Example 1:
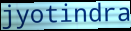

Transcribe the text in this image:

jyotindra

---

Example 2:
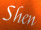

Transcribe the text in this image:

Shen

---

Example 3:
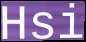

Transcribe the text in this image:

Hsi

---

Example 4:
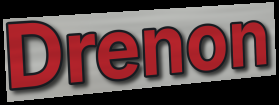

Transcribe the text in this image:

Drenon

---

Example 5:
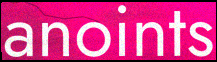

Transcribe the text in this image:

anoints